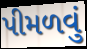
પીમળવું